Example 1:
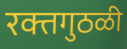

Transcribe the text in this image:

रक्तगुठळी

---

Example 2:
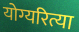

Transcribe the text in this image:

योग्यरित्या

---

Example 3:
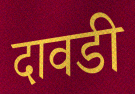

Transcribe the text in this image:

दावडी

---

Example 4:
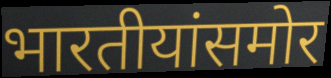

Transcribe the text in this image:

भारतीयांसमोर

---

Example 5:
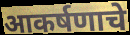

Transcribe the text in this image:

आकर्षणाचे